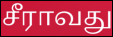
சீராவது